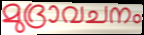
മുദ്രാവചനം